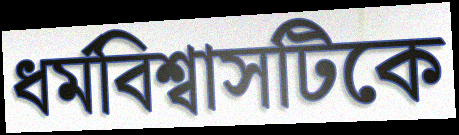
ধর্মবিশ্বাসটিকে